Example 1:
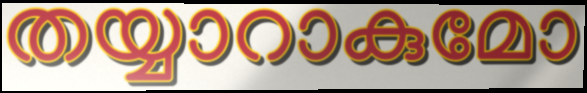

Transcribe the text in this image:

തയ്യാറാകുമോ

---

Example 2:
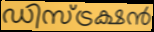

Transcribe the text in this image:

ഡിസ്ട്രക്ഷൻ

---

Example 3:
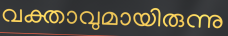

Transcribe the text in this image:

വക്താവുമായിരുന്നു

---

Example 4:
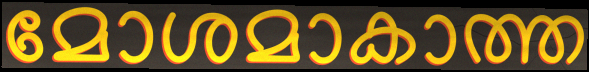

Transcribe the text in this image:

മോശമാകാത്ത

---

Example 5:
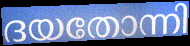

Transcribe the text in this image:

ദയതോന്നി